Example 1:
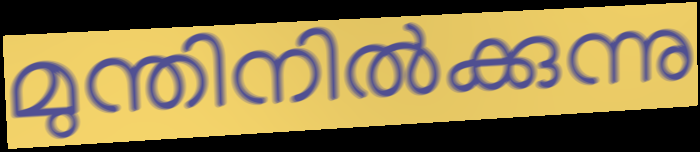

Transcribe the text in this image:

മുന്തിനിൽക്കുന്നു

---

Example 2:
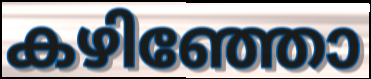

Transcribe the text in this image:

കഴിഞ്ഞോ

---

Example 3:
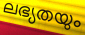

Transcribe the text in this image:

ലഭ്യതയും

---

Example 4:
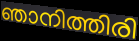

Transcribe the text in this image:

ഞാനിത്തിരി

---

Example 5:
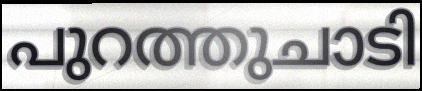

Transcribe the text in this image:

പുറത്തുചാടി